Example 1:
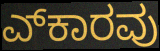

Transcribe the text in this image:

ಎ್‍ಕಾರವು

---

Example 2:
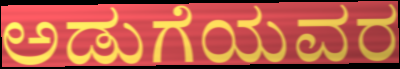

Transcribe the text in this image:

ಅಡುಗೆಯವರ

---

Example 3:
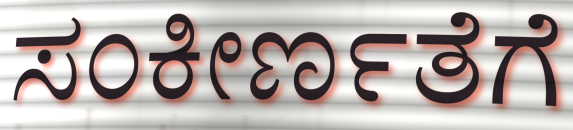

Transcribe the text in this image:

ಸಂಕೀರ್ಣತೆಗೆ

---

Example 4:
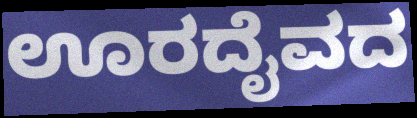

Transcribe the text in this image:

ಊರದೈವದ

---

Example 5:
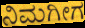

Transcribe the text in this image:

ನಿಮಗೀಗ